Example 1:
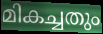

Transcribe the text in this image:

മികച്ചതും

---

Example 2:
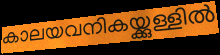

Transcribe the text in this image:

കാലയവനികയ്ക്കുള്ളിൽ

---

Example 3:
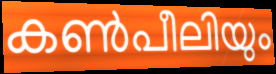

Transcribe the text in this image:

കൺപീലിയും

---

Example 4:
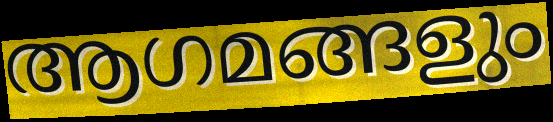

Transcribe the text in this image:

ആഗമങ്ങളും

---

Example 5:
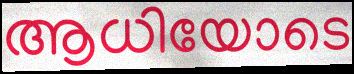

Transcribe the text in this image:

ആധിയോടെ